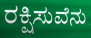
ರಕ್ಷಿಸುವೆನು